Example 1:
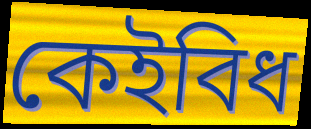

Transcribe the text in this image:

কেইবিধ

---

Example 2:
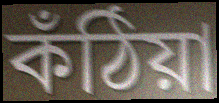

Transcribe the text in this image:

কঁঠিয়া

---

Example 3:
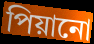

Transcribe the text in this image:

পিয়ানো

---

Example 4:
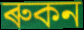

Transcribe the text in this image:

ৰুকন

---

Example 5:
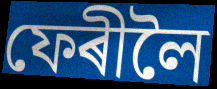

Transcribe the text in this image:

ফেৰীলৈ